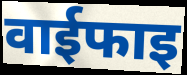
वाईफाइ